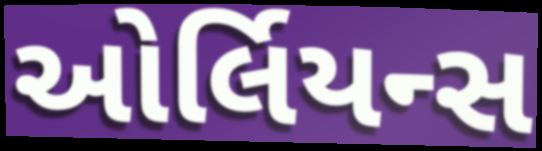
ઓર્લિયન્સ